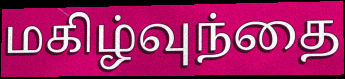
மகிழ்வுந்தை